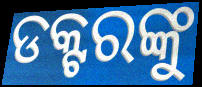
ଡକ୍ଟରଙ୍କୁ